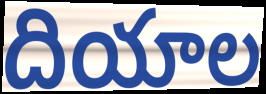
దియాల